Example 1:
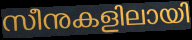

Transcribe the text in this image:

സീനുകളിലായി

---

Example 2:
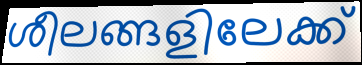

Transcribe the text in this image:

ശീലങ്ങളിലേക്ക്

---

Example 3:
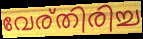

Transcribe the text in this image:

വേര്തിരിച്ച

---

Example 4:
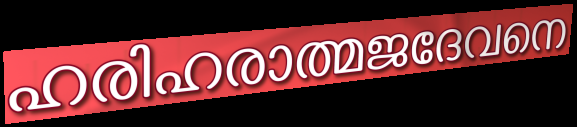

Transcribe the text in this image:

ഹരിഹരാത്മജദേവനെ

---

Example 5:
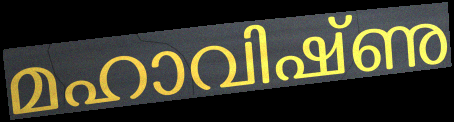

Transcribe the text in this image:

മഹാവിഷ്‌ണു